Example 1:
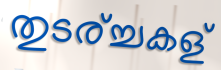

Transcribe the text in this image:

തുടര്ച്ചകള്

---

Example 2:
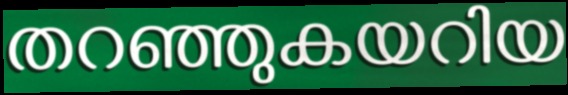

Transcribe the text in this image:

തറഞ്ഞുകയറിയ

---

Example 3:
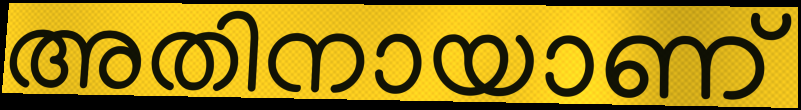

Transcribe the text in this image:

അതിനായാണ്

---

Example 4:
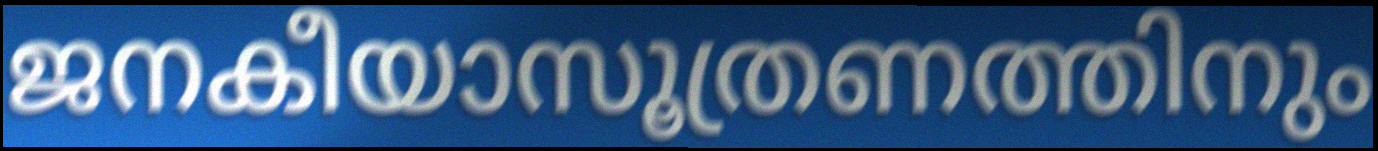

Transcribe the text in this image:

ജനകീയാസൂത്രണത്തിനും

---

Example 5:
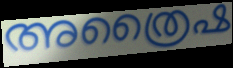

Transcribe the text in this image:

അത്രൈഷ